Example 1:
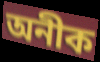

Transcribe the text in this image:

অনীক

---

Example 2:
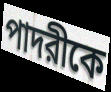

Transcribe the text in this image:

পাদরীকে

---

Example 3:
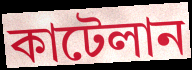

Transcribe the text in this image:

কাটেলান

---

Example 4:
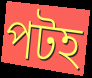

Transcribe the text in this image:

পটহ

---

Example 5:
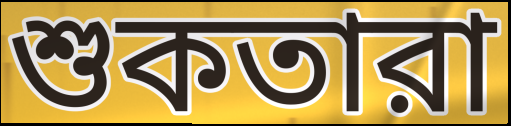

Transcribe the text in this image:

শুকতারা